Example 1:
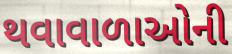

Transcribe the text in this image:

થવાવાળાઓની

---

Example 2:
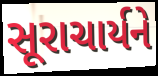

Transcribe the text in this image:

સૂરાચાર્યને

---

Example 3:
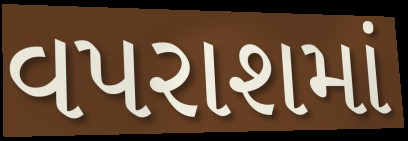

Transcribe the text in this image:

વપરાશમાં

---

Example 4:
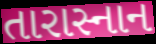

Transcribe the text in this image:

તારાસ્નાન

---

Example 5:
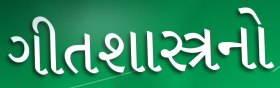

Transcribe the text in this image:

ગીતશાસ્ત્રનો